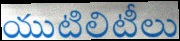
యుటిలిటీలు